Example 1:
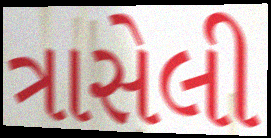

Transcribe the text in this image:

ત્રાસેલી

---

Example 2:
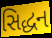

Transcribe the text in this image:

સિદ્ધન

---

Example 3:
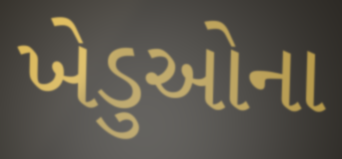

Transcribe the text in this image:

ખેડુઓના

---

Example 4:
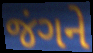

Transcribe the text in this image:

જંગને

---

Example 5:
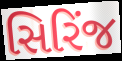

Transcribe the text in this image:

સિરિંજ